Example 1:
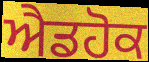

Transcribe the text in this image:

ਐਡਹੋਕ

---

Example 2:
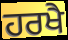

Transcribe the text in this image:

ਹਰਖੈ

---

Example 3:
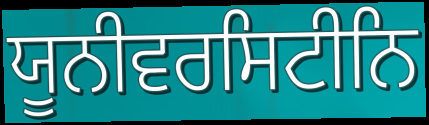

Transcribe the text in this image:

ਯੂਨੀਵਰਸਿਟੀਨਿ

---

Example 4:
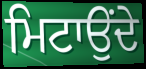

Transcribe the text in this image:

ਮਿਟਾਉਂਦੇ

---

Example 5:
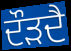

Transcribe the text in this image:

ਦੌੜਦੈ